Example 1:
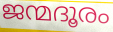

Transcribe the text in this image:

ജന്മദൂരം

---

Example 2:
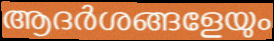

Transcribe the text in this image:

ആദർശങ്ങളേയും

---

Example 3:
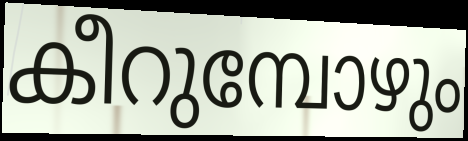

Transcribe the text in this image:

കീറുമ്പോഴും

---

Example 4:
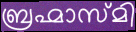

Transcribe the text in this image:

ബ്രഹ്മാസ്മി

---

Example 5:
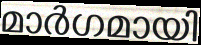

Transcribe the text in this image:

മാർഗമായി